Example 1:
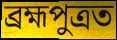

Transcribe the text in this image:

ব্ৰহ্মপুত্ৰত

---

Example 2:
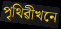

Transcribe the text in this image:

পৃথিৱীখনে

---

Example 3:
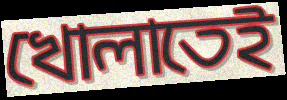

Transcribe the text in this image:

খোলাতেই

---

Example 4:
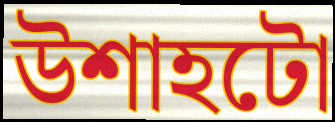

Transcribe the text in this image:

উশাহটো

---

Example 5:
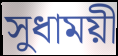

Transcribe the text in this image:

সুধাময়ী